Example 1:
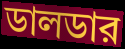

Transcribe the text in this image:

ডালডার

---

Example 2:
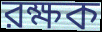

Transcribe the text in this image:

রক্ষক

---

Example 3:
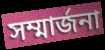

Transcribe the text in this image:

সম্মার্জনা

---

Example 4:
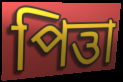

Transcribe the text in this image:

পিত্তা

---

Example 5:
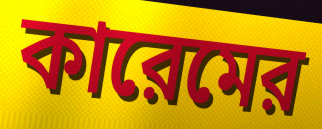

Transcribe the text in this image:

কারেমের